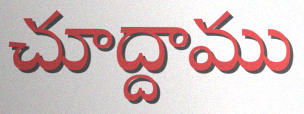
చూద్దాము